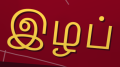
இழப்